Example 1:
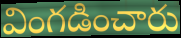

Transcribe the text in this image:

వింగడించారు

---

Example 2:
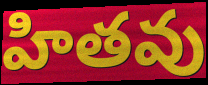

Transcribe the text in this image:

హితవు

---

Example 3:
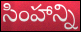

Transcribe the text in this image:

సింహాన్ని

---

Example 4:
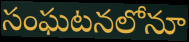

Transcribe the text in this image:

సంఘటనలోనూ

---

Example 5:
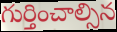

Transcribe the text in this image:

గుర్తించాల్సిన